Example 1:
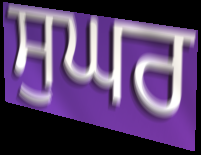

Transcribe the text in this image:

ਸੁਘਰ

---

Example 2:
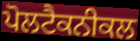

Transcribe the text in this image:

ਪੋਲਟੈਕਨੀਕਲ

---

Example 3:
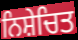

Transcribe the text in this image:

ਨਿਸ਼ੇਚਿਤ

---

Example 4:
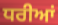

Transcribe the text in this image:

ਧਰੀਆਂ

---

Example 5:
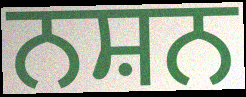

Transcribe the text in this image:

ਨਸ਼ਨ